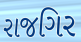
રાજગિર